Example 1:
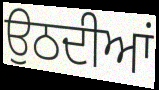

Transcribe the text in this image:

ਉਠਦੀਆਂ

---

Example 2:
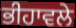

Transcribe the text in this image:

ਭੀਹਾਵਲੇ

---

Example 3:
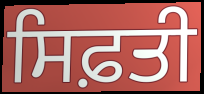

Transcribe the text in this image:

ਸਿਫ਼ਤੀ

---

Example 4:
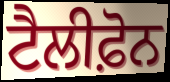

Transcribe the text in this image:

ਟੈਲੀਫ਼ੋਨ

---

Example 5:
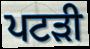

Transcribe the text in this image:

ਪਟੜੀ